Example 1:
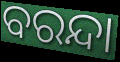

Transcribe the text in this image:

ବରନ୍ଦା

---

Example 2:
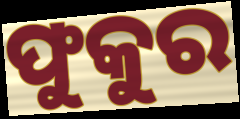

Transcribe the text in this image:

ଫୁକୁର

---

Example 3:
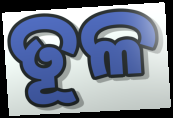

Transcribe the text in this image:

ତୂଳ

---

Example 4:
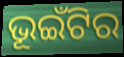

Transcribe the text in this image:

ଭୂଇଁଟିର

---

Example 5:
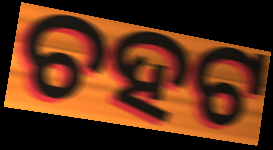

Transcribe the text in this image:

ଚହଟ